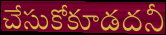
చేసుకోకూడదనీ